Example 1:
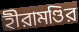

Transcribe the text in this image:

হীরামণ্ডির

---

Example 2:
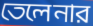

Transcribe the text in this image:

তেলেনার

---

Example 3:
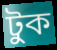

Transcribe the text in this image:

টুক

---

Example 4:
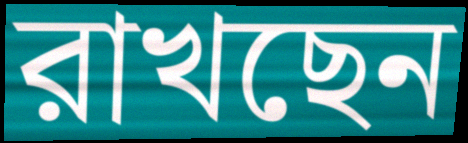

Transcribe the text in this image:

রাখছেন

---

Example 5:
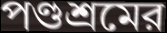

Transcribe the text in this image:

পণ্ডশ্রমের